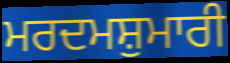
ਮਰਦਮਸ਼ੁਮਾਰੀ